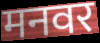
मनवर